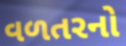
વળતરનો